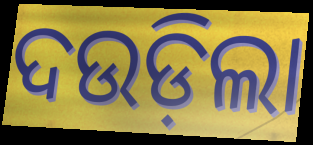
ଦଉଡ଼ିଲା